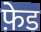
फ़ेड